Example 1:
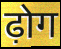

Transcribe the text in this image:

ढ़ोग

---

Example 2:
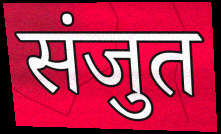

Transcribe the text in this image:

संजुत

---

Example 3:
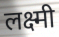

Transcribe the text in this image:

लक्ष्‍मी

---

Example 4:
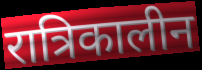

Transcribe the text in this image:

रात्रिकालीन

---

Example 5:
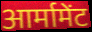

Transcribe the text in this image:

आर्मामेंट